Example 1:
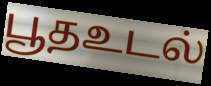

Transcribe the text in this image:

பூதஉடல்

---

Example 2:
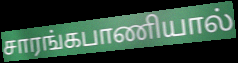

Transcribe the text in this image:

சாரங்கபாணியால்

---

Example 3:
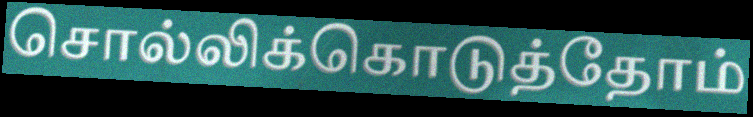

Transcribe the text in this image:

சொல்லிக்கொடுத்தோம்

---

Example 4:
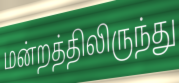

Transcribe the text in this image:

மன்றத்திலிருந்து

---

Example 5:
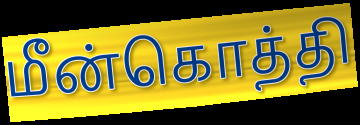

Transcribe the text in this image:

மீன்கொத்தி